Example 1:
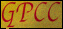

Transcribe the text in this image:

GPCC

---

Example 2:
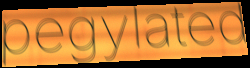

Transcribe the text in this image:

pegylated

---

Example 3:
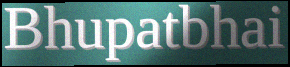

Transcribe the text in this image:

Bhupatbhai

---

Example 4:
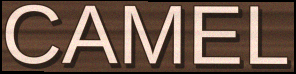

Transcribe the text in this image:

CAMEL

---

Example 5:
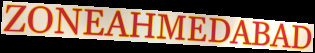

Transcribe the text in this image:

ZONEAHMEDABAD